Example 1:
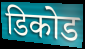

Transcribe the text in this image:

डिकोड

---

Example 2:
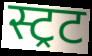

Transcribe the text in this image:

स्ट्रट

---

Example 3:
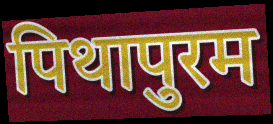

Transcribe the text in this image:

पिथापुरम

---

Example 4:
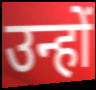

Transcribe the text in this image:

उन्हों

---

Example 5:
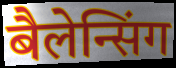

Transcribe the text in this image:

बैलेन्सिंग